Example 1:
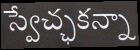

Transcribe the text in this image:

స్వేచ్ఛకన్నా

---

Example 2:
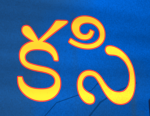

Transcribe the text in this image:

కసి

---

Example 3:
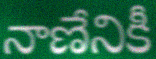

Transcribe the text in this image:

నాణేనికీ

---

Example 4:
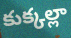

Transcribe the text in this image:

కుక్కల్లా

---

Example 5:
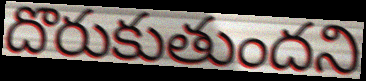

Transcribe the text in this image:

దొరుకుతుందని